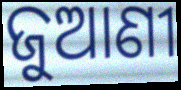
ଜୁଆଣୀ